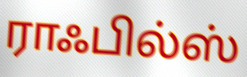
ராஃபில்ஸ்